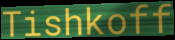
Tishkoff